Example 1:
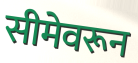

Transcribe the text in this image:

सीमेवरून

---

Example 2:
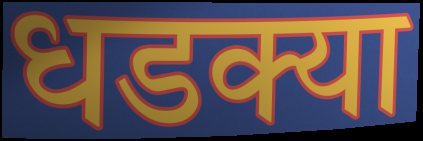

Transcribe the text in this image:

धडक्या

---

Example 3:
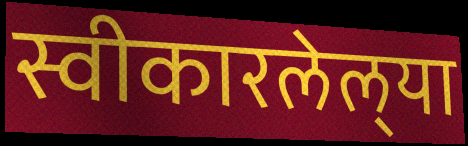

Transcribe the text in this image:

स्वीकारलेल्या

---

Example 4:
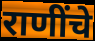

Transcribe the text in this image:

राणींचे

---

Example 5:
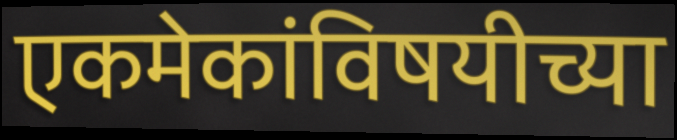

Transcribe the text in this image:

एकमेकांविषयीच्या